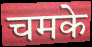
चमके